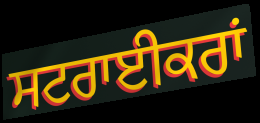
ਸਟਰਾਈਕਰਾਂ